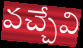
వచ్చేవి